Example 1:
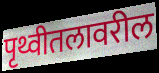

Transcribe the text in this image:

पृथ्वीतलावरील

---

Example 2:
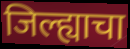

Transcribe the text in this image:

जिल्ह्याचा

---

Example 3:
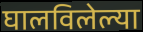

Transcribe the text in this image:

घालविलेल्या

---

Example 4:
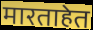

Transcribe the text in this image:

मारताहेत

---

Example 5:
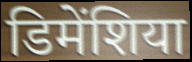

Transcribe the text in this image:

डिमेंशिया